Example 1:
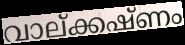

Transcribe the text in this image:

വാല്ക്കഷ്ണം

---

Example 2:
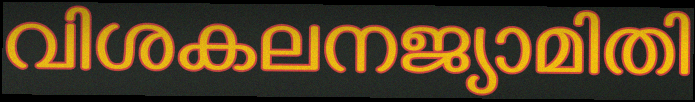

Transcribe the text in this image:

വിശകലനജ്യാമിതി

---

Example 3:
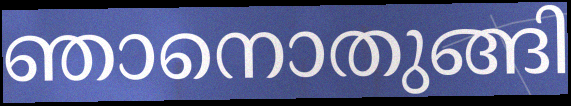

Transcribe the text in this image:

ഞാനൊതുങ്ങി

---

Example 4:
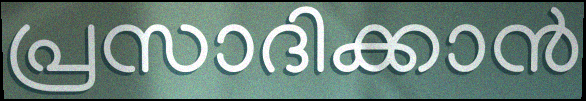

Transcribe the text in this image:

പ്രസാദിക്കാൻ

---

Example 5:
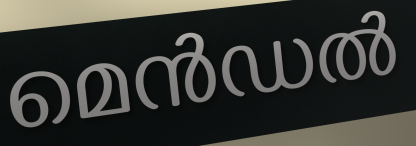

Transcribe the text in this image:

മെൻഡൽ